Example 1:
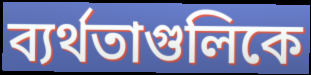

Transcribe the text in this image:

ব্যর্থতাগুলিকে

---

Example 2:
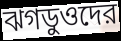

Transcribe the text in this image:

ঝগডুওদের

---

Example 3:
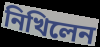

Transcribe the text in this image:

নিখিলেন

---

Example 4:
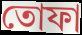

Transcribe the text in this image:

তোফা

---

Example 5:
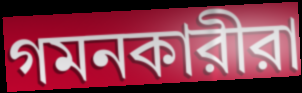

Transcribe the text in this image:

গমনকারীরা